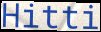
Hitti